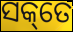
ସକ୍‌ତେ